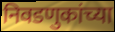
निवडणुकांच्या